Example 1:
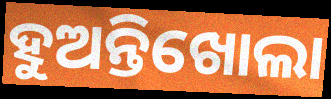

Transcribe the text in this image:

ହୁଅନ୍ତିଖୋଲା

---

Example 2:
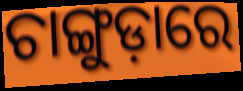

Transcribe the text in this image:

ଚାଙ୍ଗୁଡ଼ାରେ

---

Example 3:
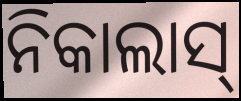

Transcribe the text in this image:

ନିକାଲାସ୍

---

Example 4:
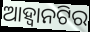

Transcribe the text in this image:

ଆହ୍ଵାନଟିର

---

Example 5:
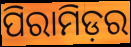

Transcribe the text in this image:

ପିରାମିଡ଼ର